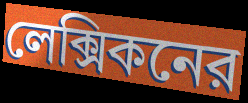
লেক্সিকনের